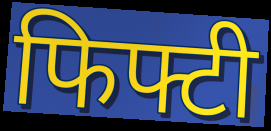
फिफ्टी